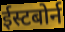
ईस्टबोर्न